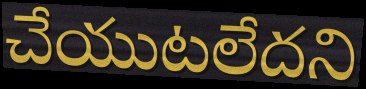
చేయుటలేదని